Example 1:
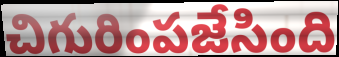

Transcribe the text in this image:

చిగురింపజేసింది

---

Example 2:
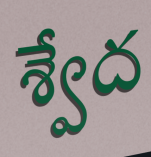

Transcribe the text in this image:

శ్వేద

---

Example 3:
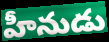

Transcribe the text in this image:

హీనుడు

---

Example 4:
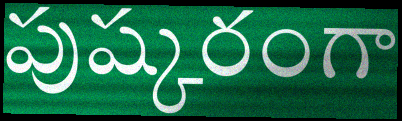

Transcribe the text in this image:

పుష్కరంగా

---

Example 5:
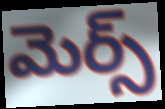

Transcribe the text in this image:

మెర్స్